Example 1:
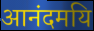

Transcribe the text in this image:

आनंदमयि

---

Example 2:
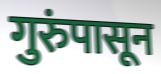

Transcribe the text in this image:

गुरुंपासून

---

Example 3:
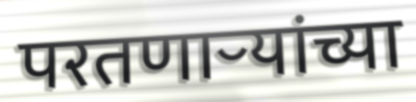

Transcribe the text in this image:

परतणाऱ्यांच्या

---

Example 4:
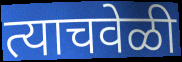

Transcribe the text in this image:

त्याचवेळी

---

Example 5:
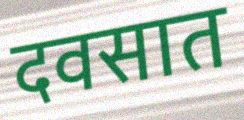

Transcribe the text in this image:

दवसात